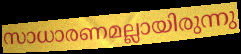
സാധാരണമല്ലായിരുന്നു